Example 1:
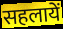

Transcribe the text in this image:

सहलायें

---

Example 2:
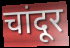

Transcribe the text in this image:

चांदूर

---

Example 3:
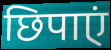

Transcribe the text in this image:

छिपाएं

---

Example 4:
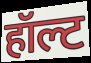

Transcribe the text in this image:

हॉल्‍ट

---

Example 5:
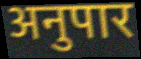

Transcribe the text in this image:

अनुपार